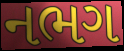
નભગ